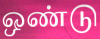
ஒண்டு